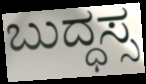
ಬುದ್ಧಸ್ಸ